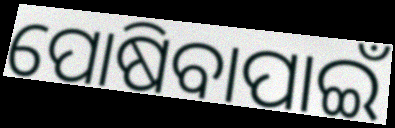
ପୋଷିବାପାଇଁ